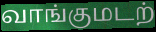
வாங்குமடற்